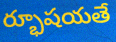
ర్భూషయతే